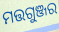
ମତ୍ତଗୁଞ୍ଜର